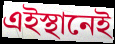
এইস্থানেই